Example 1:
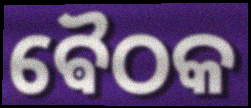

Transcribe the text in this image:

ଵୈଠକ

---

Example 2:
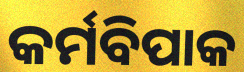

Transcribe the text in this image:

କର୍ମବିପାକ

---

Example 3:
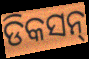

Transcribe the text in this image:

ଡିକସନ୍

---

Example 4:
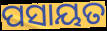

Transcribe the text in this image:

ପସାୟତ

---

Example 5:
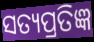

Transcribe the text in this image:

ସତ୍ୟପ୍ରତିଜ୍ଞ